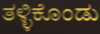
ತಳ್ಳಿಕೊಂಡು